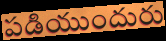
పడియుందురు